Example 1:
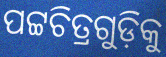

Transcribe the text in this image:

ପଟ୍ଟଚିତ୍ରଗୁଡ଼ିକୁ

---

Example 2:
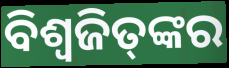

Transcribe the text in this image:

ବିଶ୍ଵଜିତ୍‌ଙ୍କର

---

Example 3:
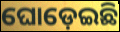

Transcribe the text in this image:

ଘୋଡ଼େଇଛି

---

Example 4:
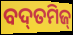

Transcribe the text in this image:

ବଦ୍‌ତମିଜ୍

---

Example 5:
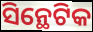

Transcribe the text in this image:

ସିନ୍ଥେଟିକ